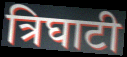
त्रिघाटी